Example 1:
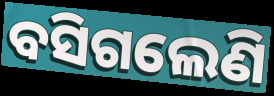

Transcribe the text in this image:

ବସିଗଲେଣି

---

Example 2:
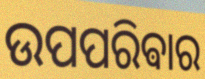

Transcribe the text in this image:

ଉପପରିଵାର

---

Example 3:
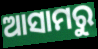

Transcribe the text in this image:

ଆସାମରୁ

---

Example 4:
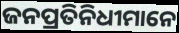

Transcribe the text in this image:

ଜନପ୍ରତିନିଧୀମାନେ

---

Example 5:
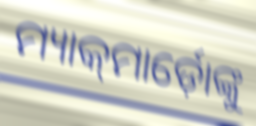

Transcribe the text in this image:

ମ୍ୟାକ୍‍ମାର୍ଡ଼ୋଙ୍କୁ